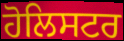
ਹੋਲਿਸਟਰ